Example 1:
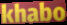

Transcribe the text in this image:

khabo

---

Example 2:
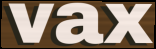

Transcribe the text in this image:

vax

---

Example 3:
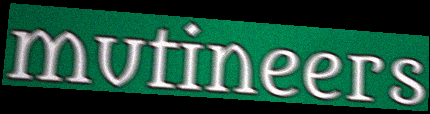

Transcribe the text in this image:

mutineers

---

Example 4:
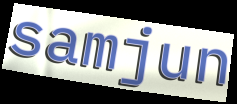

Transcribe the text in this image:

samjun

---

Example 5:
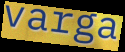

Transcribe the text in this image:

varga